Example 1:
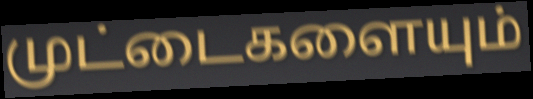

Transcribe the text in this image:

முட்டைகளையும்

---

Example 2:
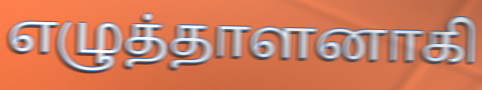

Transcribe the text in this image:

எழுத்தாளனாகி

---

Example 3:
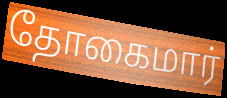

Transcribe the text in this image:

தோகைமார்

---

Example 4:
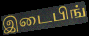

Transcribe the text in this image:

இடைபிங்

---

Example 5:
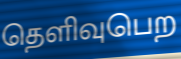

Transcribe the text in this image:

தெளிவுபெற